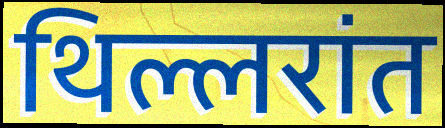
थिल्लरांत